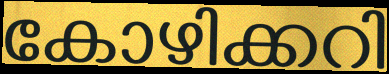
കോഴിക്കറി